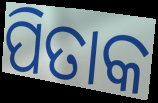
ପିତାକ